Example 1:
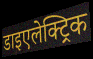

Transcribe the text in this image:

डाइएलेक्ट्रिक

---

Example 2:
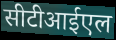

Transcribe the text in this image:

सीटीआईएल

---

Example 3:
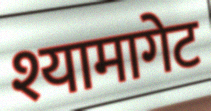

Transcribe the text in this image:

श्यामागेट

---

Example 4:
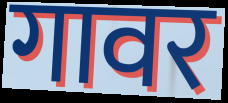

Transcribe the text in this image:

गावर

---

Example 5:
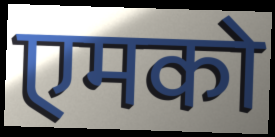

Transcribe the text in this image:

एमको